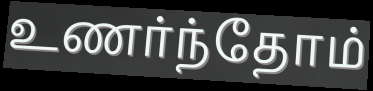
உணர்ந்தோம்